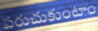
పరుచుకుంటాం